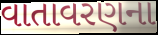
વાતાવરણના